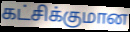
கட்சிக்குமான